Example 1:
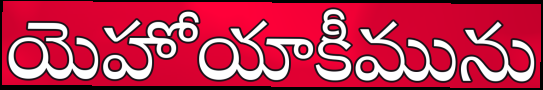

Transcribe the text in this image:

యెహోయాకీమును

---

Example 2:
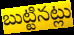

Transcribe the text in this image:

బుట్టినట్లు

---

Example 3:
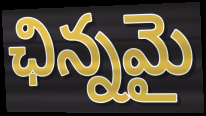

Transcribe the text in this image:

ఛిన్నమై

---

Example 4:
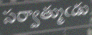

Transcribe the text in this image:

సర్వాత్ముఁడు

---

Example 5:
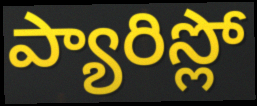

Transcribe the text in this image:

ప్యారిస్లో